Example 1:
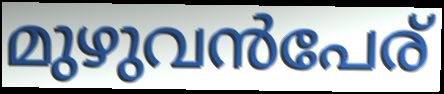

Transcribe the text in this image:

മുഴുവൻപേര്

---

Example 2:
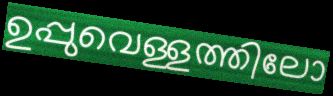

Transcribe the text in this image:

ഉപ്പുവെള്ളത്തിലോ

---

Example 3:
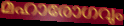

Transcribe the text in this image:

മഹാരോഗവും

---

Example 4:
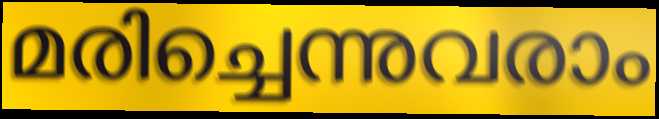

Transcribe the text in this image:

മരിച്ചെന്നുവരാം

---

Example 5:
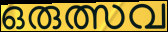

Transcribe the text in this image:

ഒരുത്സവ